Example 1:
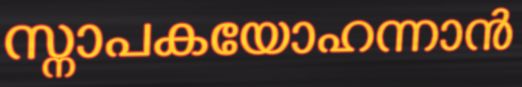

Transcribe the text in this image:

സ്നാപകയോഹന്നാൻ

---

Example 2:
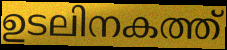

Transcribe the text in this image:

ഉടലിനകത്ത്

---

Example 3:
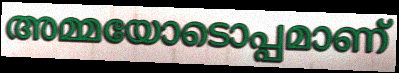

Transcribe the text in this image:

അമ്മയോടൊപ്പമാണ്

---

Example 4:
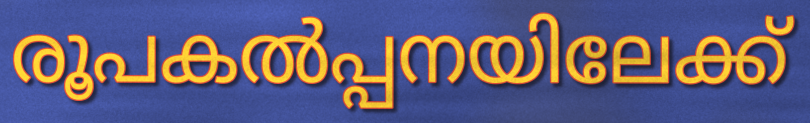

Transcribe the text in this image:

രൂപകൽപ്പനയിലേക്ക്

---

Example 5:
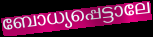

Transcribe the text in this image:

ബോധ്യപ്പെട്ടാലേ